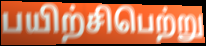
பயிற்சிபெற்று